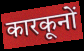
कारकूनों